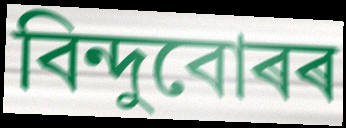
বিন্দুবোৰৰ